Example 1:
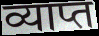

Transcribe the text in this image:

व्याप्त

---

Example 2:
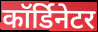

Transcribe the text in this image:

कॉर्डिनेटर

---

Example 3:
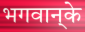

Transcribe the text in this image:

भगवान्‌के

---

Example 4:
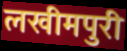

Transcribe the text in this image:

लखीमपुरी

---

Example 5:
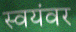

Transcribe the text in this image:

स्वयंवर